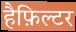
हैफ़िल्टर